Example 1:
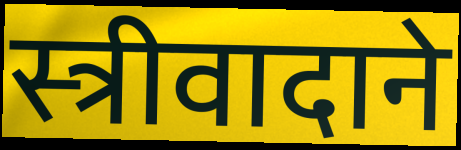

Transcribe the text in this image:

स्त्रीवादाने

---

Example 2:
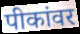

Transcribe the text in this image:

पीकांवर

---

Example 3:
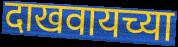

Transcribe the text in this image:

दाखवायच्या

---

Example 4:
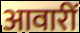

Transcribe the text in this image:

आवारीं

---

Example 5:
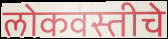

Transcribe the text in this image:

लोकवस्तीचे